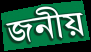
জনীয়